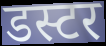
डस्टर